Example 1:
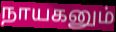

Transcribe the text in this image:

நாயகனும்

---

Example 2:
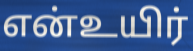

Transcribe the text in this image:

என்உயிர்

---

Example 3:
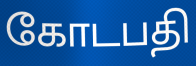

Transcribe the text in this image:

கோடபதி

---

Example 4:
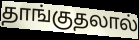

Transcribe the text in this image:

தாங்குதலால்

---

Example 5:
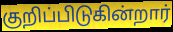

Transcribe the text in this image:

குறிப்பிடுகின்றார்